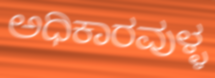
ಅಧಿಕಾರವುಳ್ಳ